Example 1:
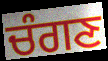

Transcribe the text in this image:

ਚੰਗਣ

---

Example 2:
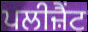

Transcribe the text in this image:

ਪਲੀਜ਼ੈਂਟ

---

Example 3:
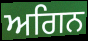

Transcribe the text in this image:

ਅਗਿਨ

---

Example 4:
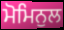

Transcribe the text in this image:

ਮੋਮਿਨੁਲ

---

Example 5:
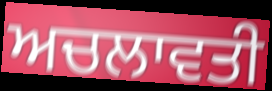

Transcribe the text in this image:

ਅਚਲਾਵਤੀ